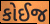
કોઈજ